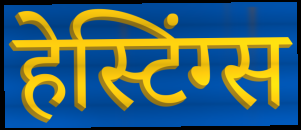
हेस्टिंग्स